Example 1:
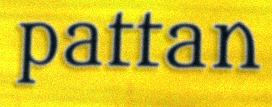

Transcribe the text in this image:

pattan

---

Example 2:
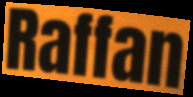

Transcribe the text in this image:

Raffan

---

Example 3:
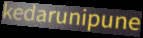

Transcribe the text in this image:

kedarunipune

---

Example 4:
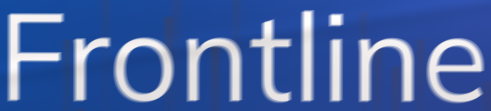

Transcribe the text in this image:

Frontline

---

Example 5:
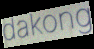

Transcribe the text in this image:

dakong